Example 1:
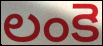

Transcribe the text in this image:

లంకె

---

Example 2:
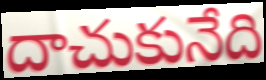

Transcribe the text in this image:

దాచుకునేది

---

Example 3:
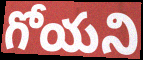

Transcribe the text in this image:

గోయని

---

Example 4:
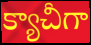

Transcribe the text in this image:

క్యాచీగా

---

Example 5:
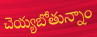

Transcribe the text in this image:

చెయ్యబోతున్నాం